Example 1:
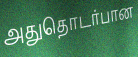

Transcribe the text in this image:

அதுதொடர்பான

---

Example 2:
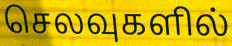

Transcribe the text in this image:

செலவுகளில்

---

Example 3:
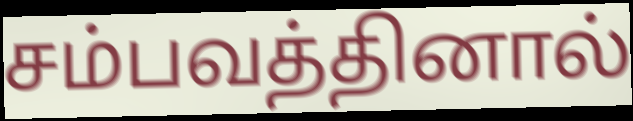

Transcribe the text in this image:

சம்பவத்தினால்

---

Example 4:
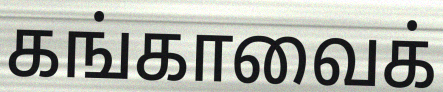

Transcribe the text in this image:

கங்காவைக்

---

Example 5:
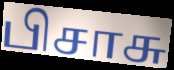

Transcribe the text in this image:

பிசாசு